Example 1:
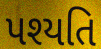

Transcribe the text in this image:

પશ્યતિ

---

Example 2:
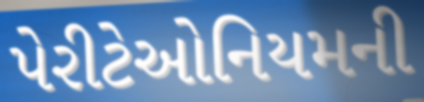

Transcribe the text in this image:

પેરીટેઓનિયમની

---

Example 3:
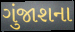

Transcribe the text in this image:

ગુંજાશના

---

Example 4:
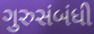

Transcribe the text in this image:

ગુરુસંબંધી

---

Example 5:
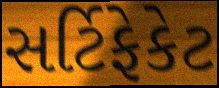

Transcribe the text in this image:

સર્ટિફેકેટ